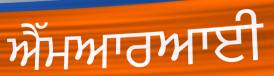
ਐੱਮਆਰਆਈ